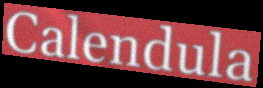
Calendula